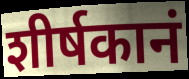
शीर्षकानं